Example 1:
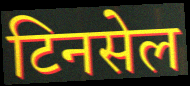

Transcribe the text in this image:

टिनसेल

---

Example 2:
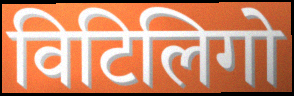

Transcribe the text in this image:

विटिलिगो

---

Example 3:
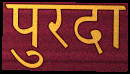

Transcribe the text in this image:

पुरदा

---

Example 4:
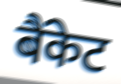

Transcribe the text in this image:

बैंकेट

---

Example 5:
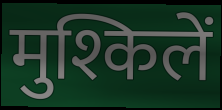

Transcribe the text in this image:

मुश्किलें